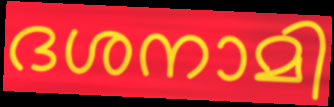
ദശനാമി